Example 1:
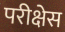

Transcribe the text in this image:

परीक्षेस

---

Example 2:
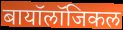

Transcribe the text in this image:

बायॉलॉजिकल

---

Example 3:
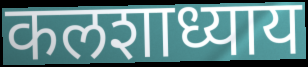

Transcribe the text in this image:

कलशाध्याय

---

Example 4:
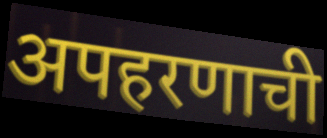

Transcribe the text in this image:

अपहरणाची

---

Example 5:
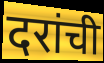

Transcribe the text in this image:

दरांची